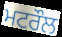
ਮਟਰੌਲ